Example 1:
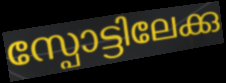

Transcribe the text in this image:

സ്പോട്ടിലേക്കു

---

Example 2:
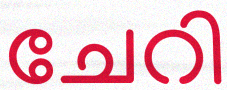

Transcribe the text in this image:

ചേറി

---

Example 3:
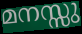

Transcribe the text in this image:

മനസ്സു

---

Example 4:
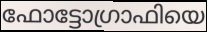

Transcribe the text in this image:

ഫോട്ടോഗ്രാഫിയെ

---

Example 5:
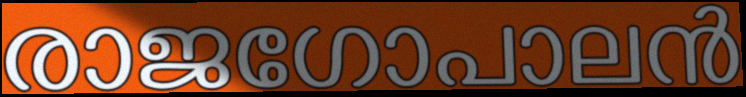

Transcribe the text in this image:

രാജഗോപാലൻ